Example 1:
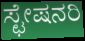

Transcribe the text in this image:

ಸ್ಟೇಷನರಿ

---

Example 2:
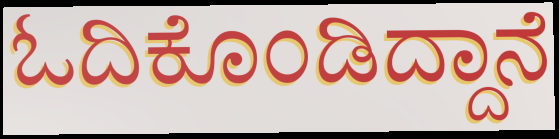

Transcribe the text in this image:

ಓದಿಕೊಂಡಿದ್ದಾನೆ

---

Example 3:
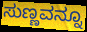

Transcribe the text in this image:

ಸುಣ್ಣವನ್ನೂ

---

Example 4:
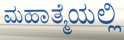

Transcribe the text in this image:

ಮಹಾತ್ಮೆಯಲ್ಲಿ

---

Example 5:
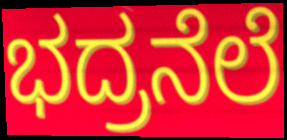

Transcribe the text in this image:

ಭದ್ರನೆಲೆ